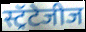
स्ट्रॅटेजीज